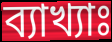
ব্যাখ্যাঃ